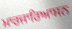
ਮਾਰਜਾਰਿਆਸਨ